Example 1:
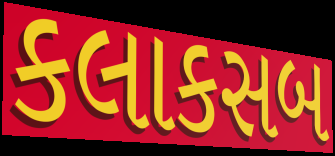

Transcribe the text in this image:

કલાકસબ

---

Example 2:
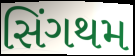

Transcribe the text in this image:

સિંગથમ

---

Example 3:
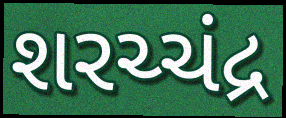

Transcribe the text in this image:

શરચ્ચંદ્ર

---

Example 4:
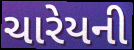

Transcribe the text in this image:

ચારેયની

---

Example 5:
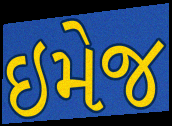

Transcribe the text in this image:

ઇમેજ